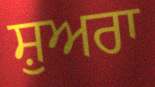
ਸ਼ੁਅਰਾ